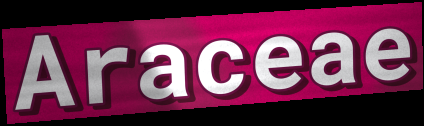
Araceae